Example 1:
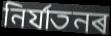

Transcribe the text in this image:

নিৰ্যাতনৰ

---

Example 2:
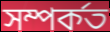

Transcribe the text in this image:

সম্পৰ্কত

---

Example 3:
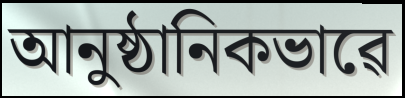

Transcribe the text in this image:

আনুষ্ঠানিকভাৱে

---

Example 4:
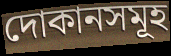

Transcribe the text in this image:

দোকানসমূহ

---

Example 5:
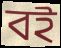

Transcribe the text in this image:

বই